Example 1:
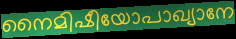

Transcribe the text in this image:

നൈമിഷീയോപാഖ്യാനേ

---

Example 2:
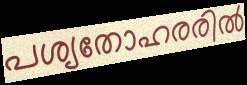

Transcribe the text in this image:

പശ്യതോഹരരിൽ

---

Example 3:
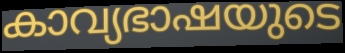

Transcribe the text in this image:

കാവ്യഭാഷയുടെ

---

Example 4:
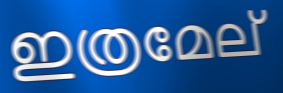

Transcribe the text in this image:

ഇത്രമേല്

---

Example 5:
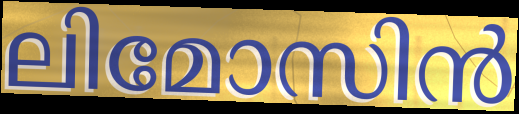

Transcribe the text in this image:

ലിമോസിൻ